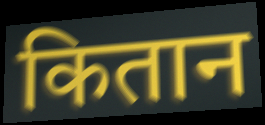
कितान